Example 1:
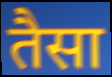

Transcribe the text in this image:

तैसा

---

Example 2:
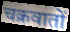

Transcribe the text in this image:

चक्रवातों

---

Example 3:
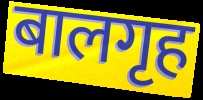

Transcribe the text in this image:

बालगृह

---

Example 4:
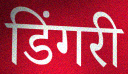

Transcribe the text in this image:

डिंगरी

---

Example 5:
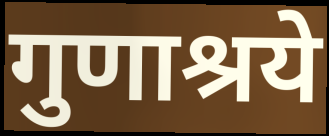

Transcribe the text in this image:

गुणाश्रये